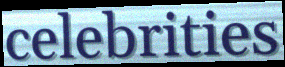
celebrities